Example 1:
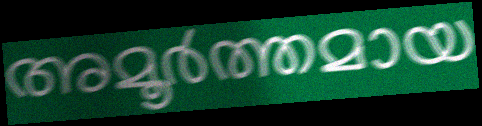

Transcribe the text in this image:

അമൂർത്തമായ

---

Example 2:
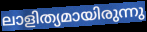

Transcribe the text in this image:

ലാളിത്യമായിരുന്നു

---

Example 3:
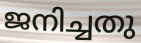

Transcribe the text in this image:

ജനിച്ചതു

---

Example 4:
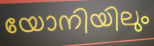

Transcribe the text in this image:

യോനിയിലും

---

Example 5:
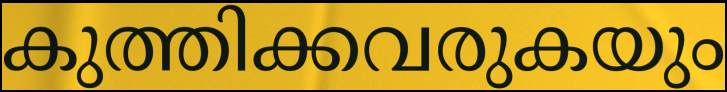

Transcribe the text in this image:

കുത്തിക്കവരുകയും